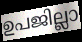
ഉപജില്ലാ